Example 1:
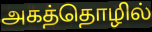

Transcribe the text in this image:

அகத்தொழில்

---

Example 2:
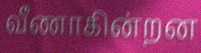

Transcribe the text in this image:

வீணாகின்றன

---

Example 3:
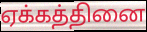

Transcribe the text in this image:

ஏக்கத்தினை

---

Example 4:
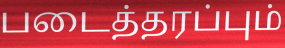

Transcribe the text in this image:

படைத்தரப்பும்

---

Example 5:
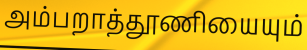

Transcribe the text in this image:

அம்பறாத்தூணியையும்